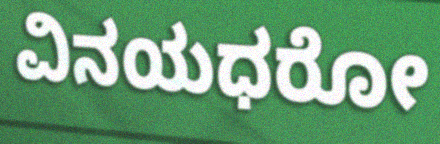
ವಿನಯಧರೋ